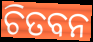
ଚିତବନ